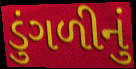
ડુંગળીનું